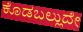
ಕೊಡಬಲ್ಲುದೇ